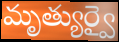
మృత్యుర్వై